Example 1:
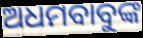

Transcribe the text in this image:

ଅଧମବାବୁଙ୍କ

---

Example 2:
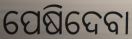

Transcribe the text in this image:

ପେଷିଦେବା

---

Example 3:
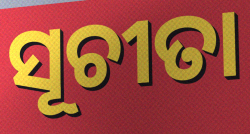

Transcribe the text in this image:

ସୂଚୀତା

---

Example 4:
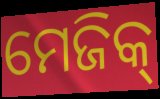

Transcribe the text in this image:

ମେଜିକ୍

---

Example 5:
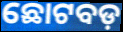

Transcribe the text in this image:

ଛୋଟବଡ଼